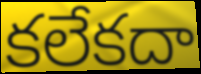
కలేకదా